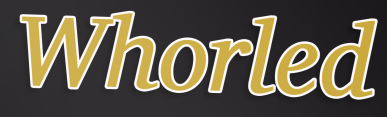
Whorled